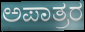
ಅಪಾತ್ರರ